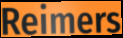
Reimers